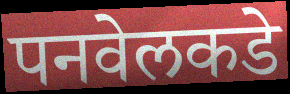
पनवेलकडे